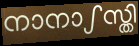
നാനാഽസ്തി